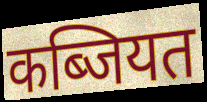
कब्जियत